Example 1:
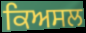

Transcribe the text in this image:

ਕਿਅਸਲ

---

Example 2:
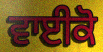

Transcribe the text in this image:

ਵਾਈਕੋ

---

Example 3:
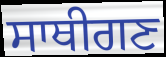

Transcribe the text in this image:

ਸਾਥੀਗਣ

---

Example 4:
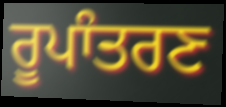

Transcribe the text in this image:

ਰੂਪਾੰਤਰਣ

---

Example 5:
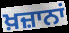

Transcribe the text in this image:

ਖ਼ਜ਼ਾਨਾਂ